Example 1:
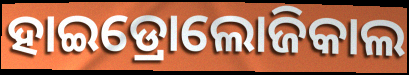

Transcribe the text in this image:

ହାଇଡ୍ରୋଲୋଜିକାଲ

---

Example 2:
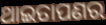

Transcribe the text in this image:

ଥାଇତାପଣର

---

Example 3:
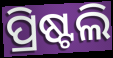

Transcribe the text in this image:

ପ୍ରିଷ୍ଟଲି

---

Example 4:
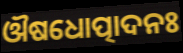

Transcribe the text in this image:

ଔଷଧୋତ୍ପାଦନଃ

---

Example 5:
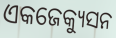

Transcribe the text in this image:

ଏକଜେକ୍ୟୁସନ